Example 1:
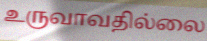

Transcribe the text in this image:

உருவாவதில்லை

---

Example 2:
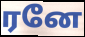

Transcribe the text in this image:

ரனே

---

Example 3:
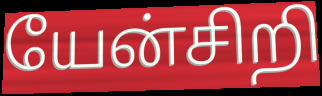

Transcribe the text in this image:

யேன்சிறி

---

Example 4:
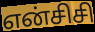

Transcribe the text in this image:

என்சிசி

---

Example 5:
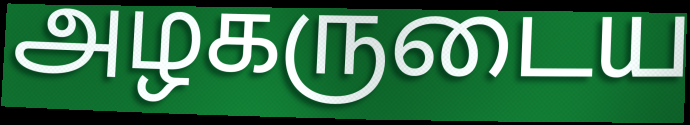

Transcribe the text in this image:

அழகருடைய